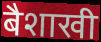
बैशाखी